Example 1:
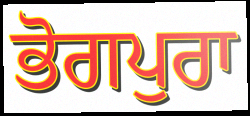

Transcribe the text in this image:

ਭੋਗਪੁਰਾ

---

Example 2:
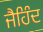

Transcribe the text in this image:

ਜੈਹਿੰਦ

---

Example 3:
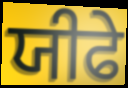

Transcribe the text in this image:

ਯੀਫੇ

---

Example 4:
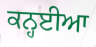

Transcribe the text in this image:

ਕਨ੍ਹਈਆ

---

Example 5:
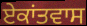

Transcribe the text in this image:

ਏਕਾਂਤਵਾਸ